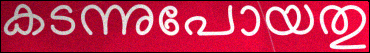
കടന്നുപോയതു